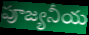
పూజ్యనీయ